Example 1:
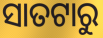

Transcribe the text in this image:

ସାତଟାରୁ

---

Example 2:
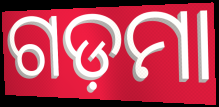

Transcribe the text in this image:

ଗଡ଼ମା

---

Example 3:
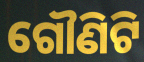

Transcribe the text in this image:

ଗୌଣିଟି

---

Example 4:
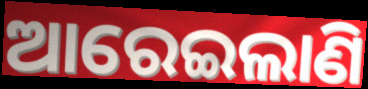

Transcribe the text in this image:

ଆରେଇଲାଣି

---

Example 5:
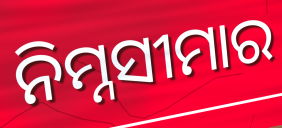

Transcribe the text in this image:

ନିମ୍ନସୀମାର